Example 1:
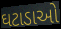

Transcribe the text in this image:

ઘટાડાઓ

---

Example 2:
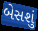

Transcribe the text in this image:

બેસશું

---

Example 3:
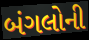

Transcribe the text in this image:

બંગલોની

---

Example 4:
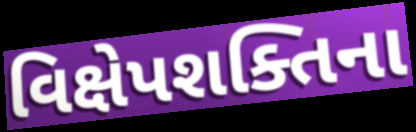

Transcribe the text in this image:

વિક્ષેપશક્તિના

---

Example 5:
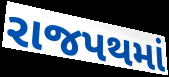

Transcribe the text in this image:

રાજપથમાં